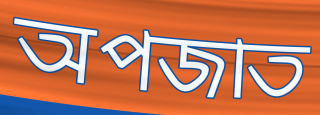
অপজাত